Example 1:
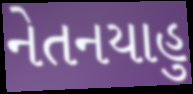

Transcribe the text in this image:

નેતનયાહુ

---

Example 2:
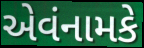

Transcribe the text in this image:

એવંનામકે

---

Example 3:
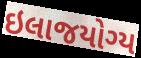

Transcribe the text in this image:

ઇલાજયોગ્ય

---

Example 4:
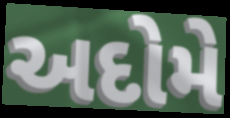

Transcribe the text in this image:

અદોમે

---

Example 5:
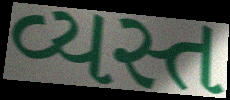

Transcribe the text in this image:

વ્યસ્ત